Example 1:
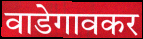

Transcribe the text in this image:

वाडेगावकर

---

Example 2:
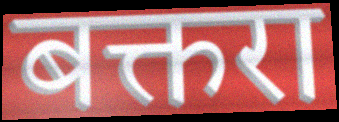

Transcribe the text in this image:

बक्तरा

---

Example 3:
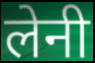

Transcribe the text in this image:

लेनी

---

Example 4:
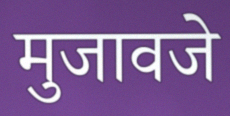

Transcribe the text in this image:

मुजावजे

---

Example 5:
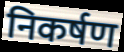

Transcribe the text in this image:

निकर्षण